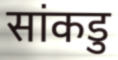
सांकडु